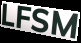
LFSM